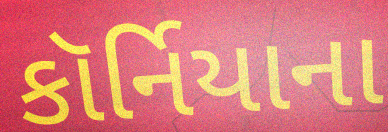
કૉર્નિયાના